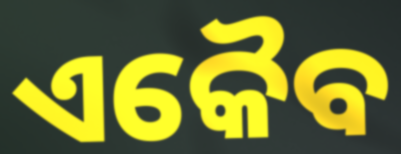
ଏକୈବ